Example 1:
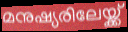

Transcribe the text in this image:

മനുഷ്യരിലേയ്ക്ക്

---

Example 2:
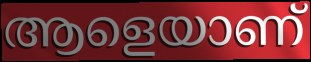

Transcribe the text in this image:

ആളെയാണ്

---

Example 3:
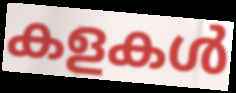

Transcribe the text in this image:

കളകൾ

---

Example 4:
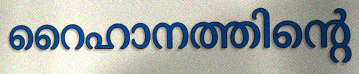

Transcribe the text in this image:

റൈഹാനത്തിന്റെ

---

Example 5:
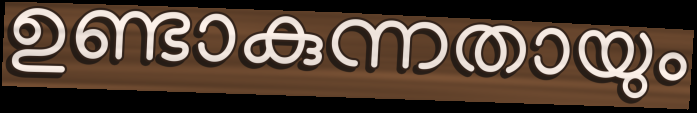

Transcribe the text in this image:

ഉണ്ടാകുന്നതായും